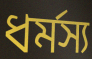
ধৰ্মস্য